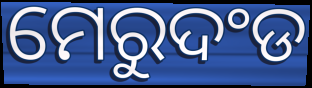
ମେରୁଦଂଡ